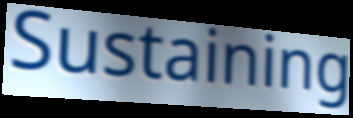
Sustaining